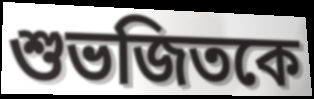
শুভজিতকে